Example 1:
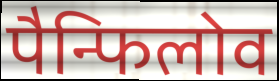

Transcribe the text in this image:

पैन्फिलोव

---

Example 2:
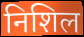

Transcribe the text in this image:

निशिल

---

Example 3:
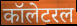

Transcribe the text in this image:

कॉलेटरल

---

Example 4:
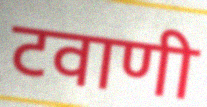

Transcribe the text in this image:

टवाणी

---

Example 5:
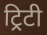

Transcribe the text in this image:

ट्रिटी